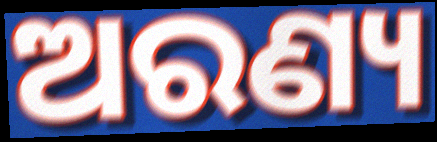
ଅରଣ୍ୟ